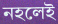
নহলেই